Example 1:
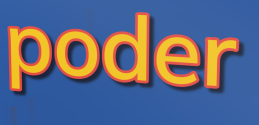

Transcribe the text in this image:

poder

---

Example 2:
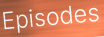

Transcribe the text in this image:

Episodes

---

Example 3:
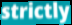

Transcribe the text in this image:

strictly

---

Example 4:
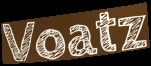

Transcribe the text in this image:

Voatz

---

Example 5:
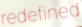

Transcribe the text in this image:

redefined